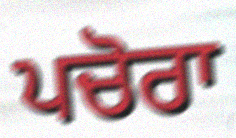
ਪਚੋਰਾ